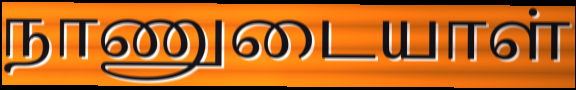
நாணுடையாள்